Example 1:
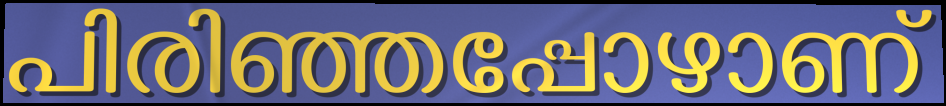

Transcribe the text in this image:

പിരിഞ്ഞപ്പോഴാണ്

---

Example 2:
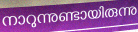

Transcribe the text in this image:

നാറുന്നുണ്ടായിരുന്നു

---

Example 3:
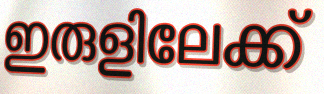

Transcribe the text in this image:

ഇരുളിലേക്ക്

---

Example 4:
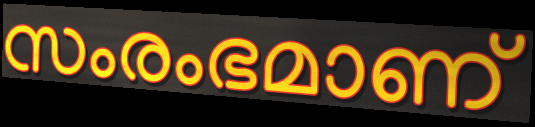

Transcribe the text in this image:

സംരംഭമാണ്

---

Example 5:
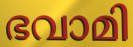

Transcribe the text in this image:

ഭവാമി